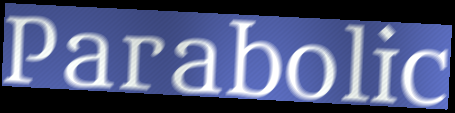
Parabolic